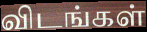
விடங்கள்